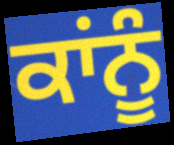
ਕਾਂਨੂੰ